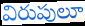
విరుపులూ